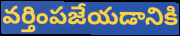
వర్తింపజేయడానికి